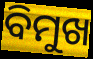
ବିମୁଖ